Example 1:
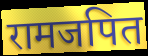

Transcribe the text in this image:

रामजपित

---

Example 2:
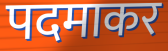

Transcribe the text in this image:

पदमाकर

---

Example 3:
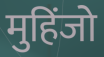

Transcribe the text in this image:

मुहिंजो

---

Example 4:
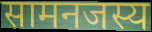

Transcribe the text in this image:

सामनजस्य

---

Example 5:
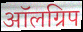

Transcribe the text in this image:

ऑलग्रिप